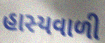
હાસ્યવાળી